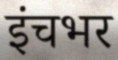
इंचभर